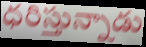
ధరిస్తున్నాడు